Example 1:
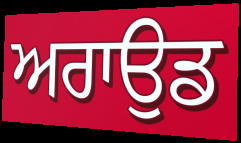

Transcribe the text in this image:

ਅਰਾਉਡ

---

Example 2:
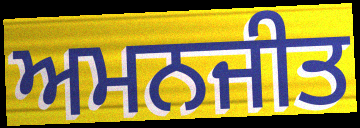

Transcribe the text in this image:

ਅਮਨਜੀਤ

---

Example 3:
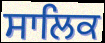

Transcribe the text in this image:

ਸਾਲਿਕ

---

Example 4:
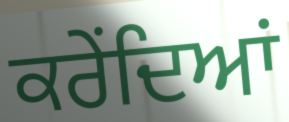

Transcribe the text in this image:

ਕਰੇਂਦਿਆਂ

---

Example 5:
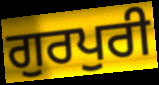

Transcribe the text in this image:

ਗੁਰਪੁਰੀ